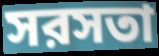
সরসতা